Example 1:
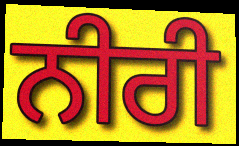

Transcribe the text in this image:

ਨੀਰੀ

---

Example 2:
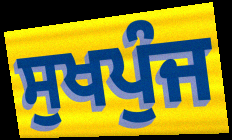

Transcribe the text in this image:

ਸੁਖਪੁੰਜ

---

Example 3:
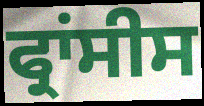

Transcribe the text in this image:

ਫ੍ਰਾਂਸੀਸ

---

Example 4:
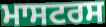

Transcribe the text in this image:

ਮਾਸਟਰਸ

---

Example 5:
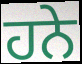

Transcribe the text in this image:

ਹਨੇ